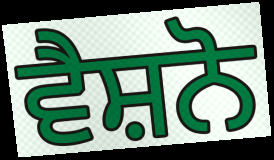
ਵੈਸ਼ਨੋ